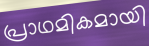
പ്രാഥമികമായി